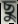
ছু